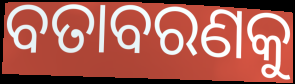
ବତାବରଣକୁ